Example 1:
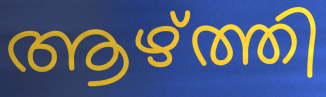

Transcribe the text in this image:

ആഴ്ത്തി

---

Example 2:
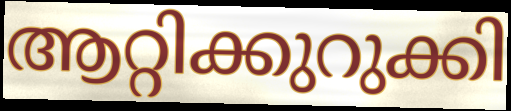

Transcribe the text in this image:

ആറ്റിക്കുറുക്കി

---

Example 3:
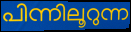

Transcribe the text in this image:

പിന്നിലൂറുന്ന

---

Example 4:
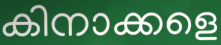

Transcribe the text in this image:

കിനാക്കളെ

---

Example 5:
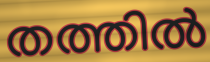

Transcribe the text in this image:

തത്തിൽ